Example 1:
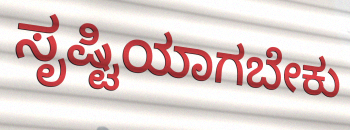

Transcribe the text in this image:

ಸೃಷ್ಟಿಯಾಗಬೇಕು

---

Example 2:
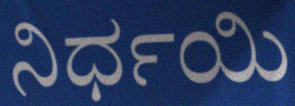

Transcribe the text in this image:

ನಿರ್ಧಯಿ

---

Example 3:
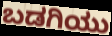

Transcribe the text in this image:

ಬಡಗಿಯು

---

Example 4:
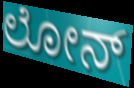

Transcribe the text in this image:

ಲೋನ್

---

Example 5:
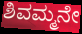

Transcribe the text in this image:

ಶಿವಮ್ಮನೇ